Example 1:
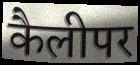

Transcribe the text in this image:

कैलीपर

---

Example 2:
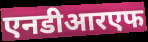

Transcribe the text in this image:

एनडीआरएफ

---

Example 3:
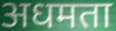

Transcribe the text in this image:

अधमता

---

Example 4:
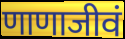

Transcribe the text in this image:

णाणाजीवं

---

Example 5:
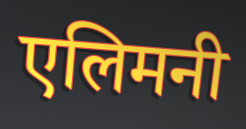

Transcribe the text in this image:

एलिमनी